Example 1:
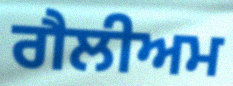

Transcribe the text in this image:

ਗੈਲੀਅਮ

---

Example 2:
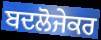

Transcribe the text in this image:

ਬਦਲੋਜੇਕਰ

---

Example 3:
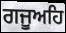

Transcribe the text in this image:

ਗਜੂਅਹਿ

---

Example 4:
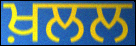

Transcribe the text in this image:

ਖ਼ਲਲ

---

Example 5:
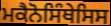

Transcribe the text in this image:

ਮਕੈਨੋਸਿੰਥੇਸਿਸ